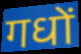
गधों